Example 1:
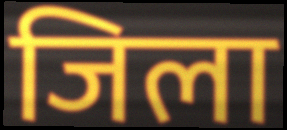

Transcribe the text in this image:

जिला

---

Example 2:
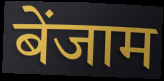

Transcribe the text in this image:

बेंजाम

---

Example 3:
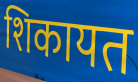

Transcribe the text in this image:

शिकायत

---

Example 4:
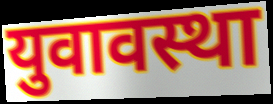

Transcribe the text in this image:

युवावस्था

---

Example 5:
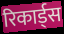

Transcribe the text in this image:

रिकार्ड्स